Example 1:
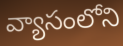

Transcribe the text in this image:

వ్యాసంలోని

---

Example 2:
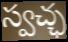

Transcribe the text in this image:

స్వచ్ఛ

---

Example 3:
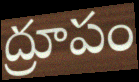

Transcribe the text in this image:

ద్రూపం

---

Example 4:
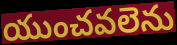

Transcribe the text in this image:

యుంచవలెను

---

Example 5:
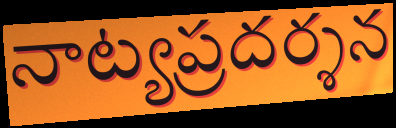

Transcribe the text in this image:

నాట్యప్రదర్శన